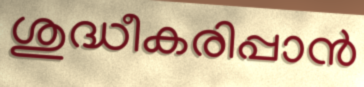
ശുദ്ധീകരിപ്പാൻ